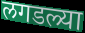
लगडल्या